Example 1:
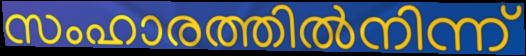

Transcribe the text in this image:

സംഹാരത്തിൽനിന്ന്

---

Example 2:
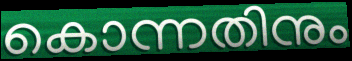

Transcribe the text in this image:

കൊന്നതിനും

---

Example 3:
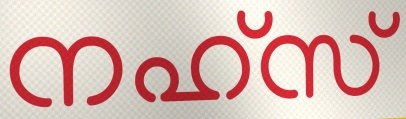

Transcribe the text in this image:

നഹ്സ്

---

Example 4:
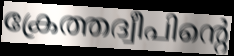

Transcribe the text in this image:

ക്രേത്തദ്വീപിന്റെ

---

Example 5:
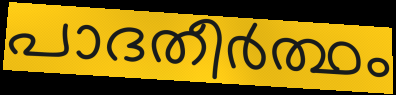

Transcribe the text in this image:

പാദതീർത്ഥം